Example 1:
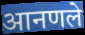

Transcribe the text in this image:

आनणले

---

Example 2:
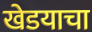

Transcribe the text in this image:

खेडयाचा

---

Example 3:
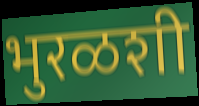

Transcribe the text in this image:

भुरळशी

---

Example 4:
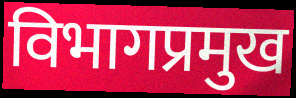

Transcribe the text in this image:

विभागप्रमुख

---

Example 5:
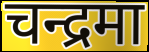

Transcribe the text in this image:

चन्द्रमा